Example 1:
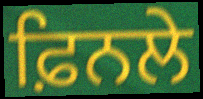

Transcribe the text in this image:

ਫ਼ਿਨਲੇ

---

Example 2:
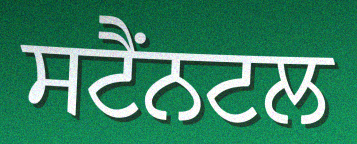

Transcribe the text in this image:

ਸਟੈਂਨਟਲ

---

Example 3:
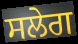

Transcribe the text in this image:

ਸਲੇਗ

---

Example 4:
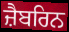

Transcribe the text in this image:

ਜ਼ੈਬਰਿਨ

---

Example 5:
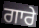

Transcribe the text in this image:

ਗਾਰੇ